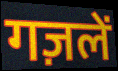
गज़लें